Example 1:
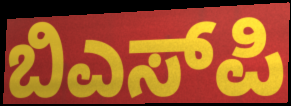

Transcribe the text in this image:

ಬಿಎಸ್‌ಪಿ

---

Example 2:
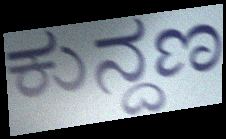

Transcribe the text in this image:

ಕುನ್ದಣ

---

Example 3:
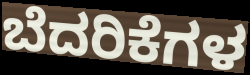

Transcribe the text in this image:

ಬೆದರಿಕೆಗಳ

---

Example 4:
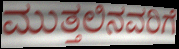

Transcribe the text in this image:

ಮುತ್ತಲಿನವರಿಗೆ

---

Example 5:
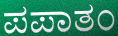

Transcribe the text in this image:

ಪಪಾತಂ